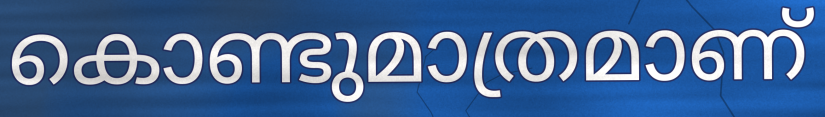
കൊണ്ടുമാത്രമാണ്